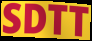
SDTT